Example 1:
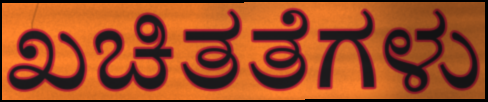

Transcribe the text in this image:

ಖಚಿತತೆಗಳು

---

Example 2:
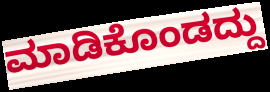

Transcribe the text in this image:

ಮಾಡಿಕೊಂಡದ್ದು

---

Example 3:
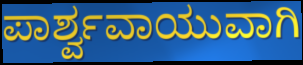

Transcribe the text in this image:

ಪಾರ್ಶ್ವವಾಯುವಾಗಿ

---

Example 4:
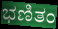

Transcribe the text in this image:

ಭಣಿತಂ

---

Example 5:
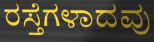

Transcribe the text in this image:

ರಸ್ತೆಗಳಾದವು